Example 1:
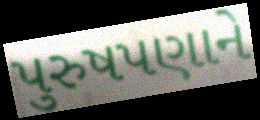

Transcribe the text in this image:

પુરુષપણાને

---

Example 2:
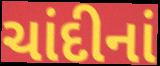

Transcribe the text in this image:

ચાંદીનાં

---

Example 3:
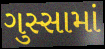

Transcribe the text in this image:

ગુસ્સામાં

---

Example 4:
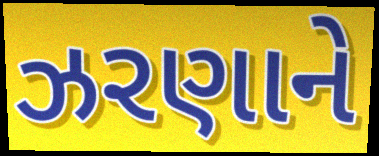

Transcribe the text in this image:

ઝરણાને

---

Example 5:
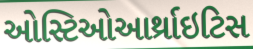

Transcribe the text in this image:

ઓસ્ટિઓઆર્થ્રાઇટિસ